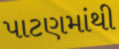
પાટણમાંથી